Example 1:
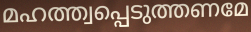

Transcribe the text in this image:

മഹത്ത്വപ്പെടുത്തണമേ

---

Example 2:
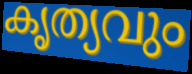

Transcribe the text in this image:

കൃത്യവും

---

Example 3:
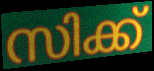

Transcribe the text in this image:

സിക്ക്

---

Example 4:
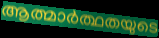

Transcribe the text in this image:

ആത്മാർത്ഥതയുടെ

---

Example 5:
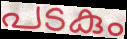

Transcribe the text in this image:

പടകും